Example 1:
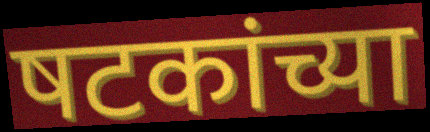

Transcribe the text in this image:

षटकांच्या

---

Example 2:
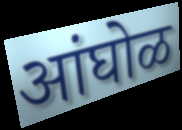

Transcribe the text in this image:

आंघोळ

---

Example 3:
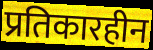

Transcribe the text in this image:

प्रतिकारहीन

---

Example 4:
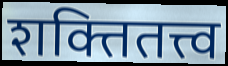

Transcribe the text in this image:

शक्तितत्त्व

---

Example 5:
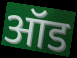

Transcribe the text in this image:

ऑड